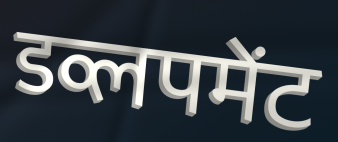
डव्लपमेंट